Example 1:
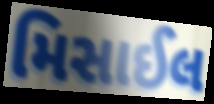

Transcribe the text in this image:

મિસાઈલ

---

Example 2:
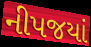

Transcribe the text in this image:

નીપજયાં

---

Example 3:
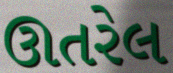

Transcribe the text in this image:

ઊતરેલ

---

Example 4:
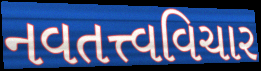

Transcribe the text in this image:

નવતત્ત્વવિચાર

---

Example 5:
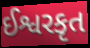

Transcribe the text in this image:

ઈશ્વરકૃત